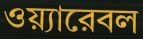
ওয়্যারেবল